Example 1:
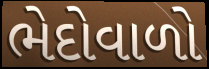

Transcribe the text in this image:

ભેદોવાળો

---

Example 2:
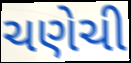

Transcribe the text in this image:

ચણેચી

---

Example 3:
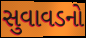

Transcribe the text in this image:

સુવાવડનો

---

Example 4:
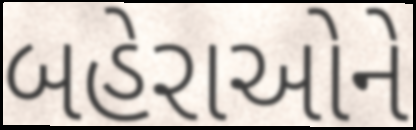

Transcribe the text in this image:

બહેરાઓને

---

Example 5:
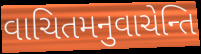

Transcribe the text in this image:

વાચિતમનુવાચેન્તિ